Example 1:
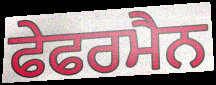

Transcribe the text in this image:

ਫੇਫਰਮੈਨ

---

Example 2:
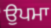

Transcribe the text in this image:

ਉਪਮਾ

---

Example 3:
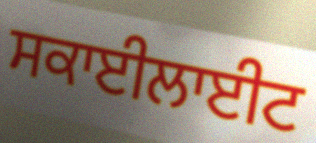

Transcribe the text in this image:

ਸਕਾਈਲਾਈਟ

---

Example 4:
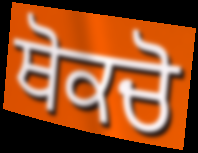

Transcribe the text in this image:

ਥੋਕਚੋ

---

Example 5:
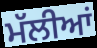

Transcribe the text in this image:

ਮੱਲੀਆਂ